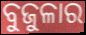
ବୁଜୁଳାର